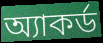
অ্যাকর্ড